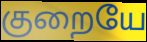
குறையே